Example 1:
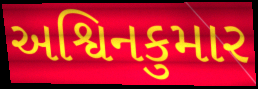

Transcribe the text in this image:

અશ્વિનકુમાર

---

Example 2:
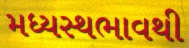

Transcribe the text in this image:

મધ્યસ્થભાવથી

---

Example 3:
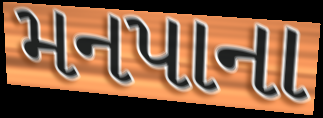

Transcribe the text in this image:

મનપાના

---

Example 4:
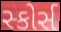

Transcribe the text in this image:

સ્કોર્સ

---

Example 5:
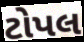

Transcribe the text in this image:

ટોપલ